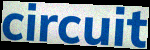
circuit